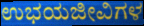
ಉಭಯಜೀವಿಗಳ